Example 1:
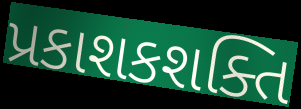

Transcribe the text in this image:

પ્રકાશકશક્તિ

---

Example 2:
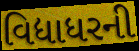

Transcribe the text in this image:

વિદ્યાધરની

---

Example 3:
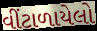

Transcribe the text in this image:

વીંટાળાયેલો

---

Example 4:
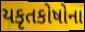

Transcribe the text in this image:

યકૃતકોષોના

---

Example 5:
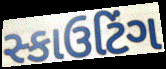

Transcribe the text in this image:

સ્કાઉટિંગ